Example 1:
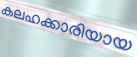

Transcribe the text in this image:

കലഹക്കാരിയായ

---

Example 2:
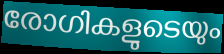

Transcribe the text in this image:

രോഗികളുടെയും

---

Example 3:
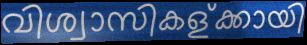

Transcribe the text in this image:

വിശ്വാസികള്ക്കായി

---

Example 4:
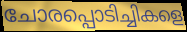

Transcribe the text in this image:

ചോരപ്പൊടിച്ചികളെ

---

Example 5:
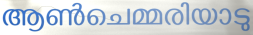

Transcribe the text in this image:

ആൺചെമ്മരിയാടു